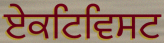
ਏਕਟਿਵਿਸਟ